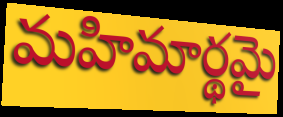
మహిమార్థమై